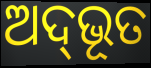
ଅଦ୍‌ଭୂତ